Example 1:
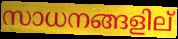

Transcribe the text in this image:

സാധനങ്ങളില്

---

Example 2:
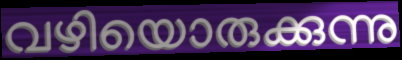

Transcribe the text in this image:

വഴിയൊരുക്കുന്നു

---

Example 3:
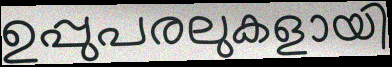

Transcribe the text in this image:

ഉപ്പുപരലുകളായി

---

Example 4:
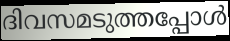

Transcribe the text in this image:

ദിവസമടുത്തപ്പോൾ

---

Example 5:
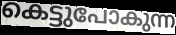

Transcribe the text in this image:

കെട്ടുപോകുന്ന